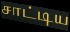
சாட்டிய